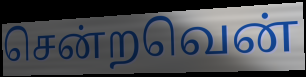
சென்றவென்